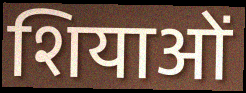
शियाओं